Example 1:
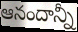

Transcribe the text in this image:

ఆనందాన్నీ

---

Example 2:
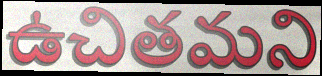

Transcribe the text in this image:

ఉచితమని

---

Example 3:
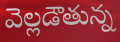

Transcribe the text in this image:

వెల్లడౌతున్న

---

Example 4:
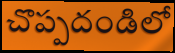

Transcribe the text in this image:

చొప్పదండిలో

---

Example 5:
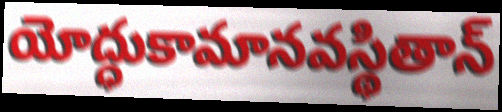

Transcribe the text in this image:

యోద్ధుకామానవస్థితాన్